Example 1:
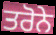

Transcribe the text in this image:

ਤਰੋਨੇ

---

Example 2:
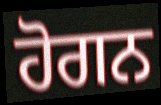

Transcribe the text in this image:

ਹੋਗਨ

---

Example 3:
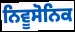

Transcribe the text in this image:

ਨਿਵੂਸੋਨਿਕ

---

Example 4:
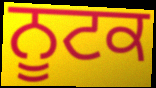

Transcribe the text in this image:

ਨੂਟਕ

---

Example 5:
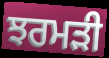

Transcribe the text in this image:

ਝਰਮੜੀ